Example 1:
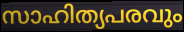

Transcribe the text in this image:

സാഹിത്യപരവും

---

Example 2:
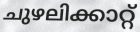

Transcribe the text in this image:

ചുഴലിക്കാറ്റ്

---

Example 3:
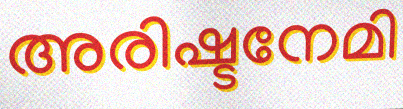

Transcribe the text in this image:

അരിഷ്ടനേമി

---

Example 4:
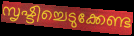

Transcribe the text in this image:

സൃഷ്ടിച്ചെടുക്കേണ്ട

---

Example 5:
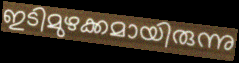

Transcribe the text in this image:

ഇടിമുഴക്കമായിരുന്നു